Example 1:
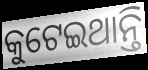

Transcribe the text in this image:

କୁଟେଇଥାନ୍ତି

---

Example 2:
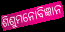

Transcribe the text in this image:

ଶିଶୁମନୋବିଜ୍ଞାନ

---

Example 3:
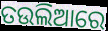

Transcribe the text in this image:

ତଉଲିଆରେ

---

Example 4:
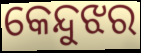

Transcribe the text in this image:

କେନ୍ଦୁଝର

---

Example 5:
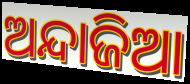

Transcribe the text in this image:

ଅନ୍ଦାଜିଆ